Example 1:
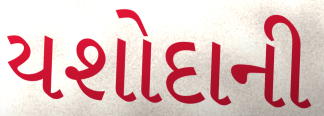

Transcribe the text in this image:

યશોદાની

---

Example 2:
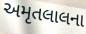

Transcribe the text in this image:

અમૃતલાલના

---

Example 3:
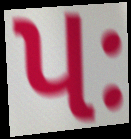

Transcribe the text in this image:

પઃ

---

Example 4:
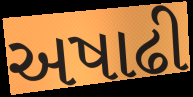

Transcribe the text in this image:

અષાઢી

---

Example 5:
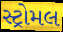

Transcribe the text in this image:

સ્ટ્રોમલ